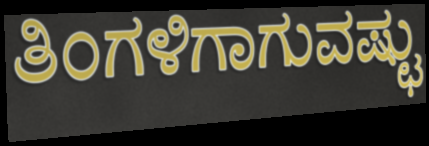
ತಿಂಗಳಿಗಾಗುವಷ್ಟು